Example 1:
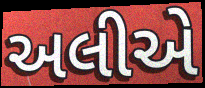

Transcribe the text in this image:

અલીએ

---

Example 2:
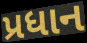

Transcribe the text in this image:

પ્રધાન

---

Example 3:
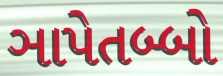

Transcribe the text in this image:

ઞાપેતબ્બો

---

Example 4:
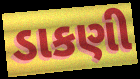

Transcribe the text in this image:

ડાકણી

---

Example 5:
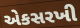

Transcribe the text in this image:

એકસરખી